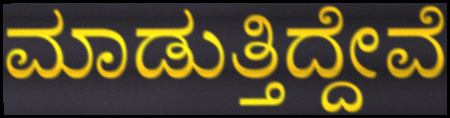
ಮಾಡುತ್ತಿದ್ದೇವೆ